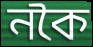
নকৈ